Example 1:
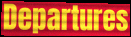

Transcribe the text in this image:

Departures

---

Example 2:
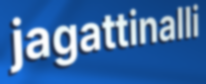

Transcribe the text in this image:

jagattinalli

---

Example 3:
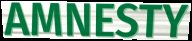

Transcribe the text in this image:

AMNESTY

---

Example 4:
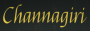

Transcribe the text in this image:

Channagiri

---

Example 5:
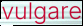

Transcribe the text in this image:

vulgare